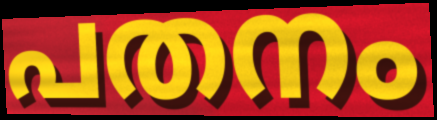
പതനം